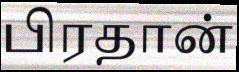
பிரதான்